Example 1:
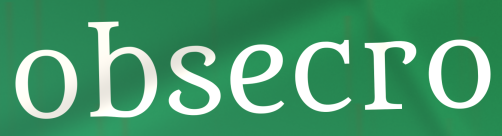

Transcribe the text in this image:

obsecro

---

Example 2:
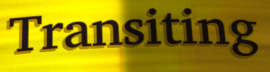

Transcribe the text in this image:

Transiting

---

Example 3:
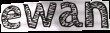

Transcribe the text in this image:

ewan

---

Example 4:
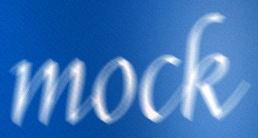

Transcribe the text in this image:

mock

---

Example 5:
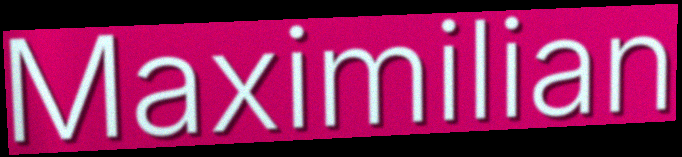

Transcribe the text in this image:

Maximilian